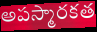
అపస్మారకత